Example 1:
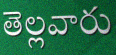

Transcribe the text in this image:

తెల్లవారు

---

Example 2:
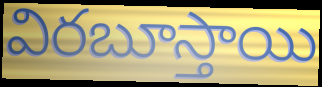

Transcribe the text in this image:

విరబూస్తాయి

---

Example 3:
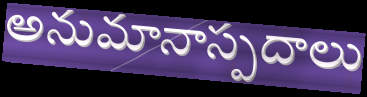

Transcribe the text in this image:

అనుమానాస్పదాలు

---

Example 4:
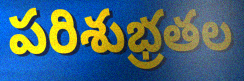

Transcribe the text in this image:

పరిశుభ్రతల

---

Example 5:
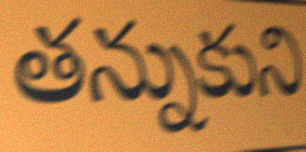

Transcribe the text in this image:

తన్నుకుని